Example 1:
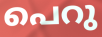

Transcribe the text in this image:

പെറു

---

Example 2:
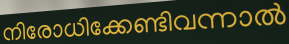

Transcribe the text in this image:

നിരോധിക്കേണ്ടിവന്നാൽ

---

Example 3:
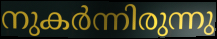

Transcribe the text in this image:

നുകർന്നിരുന്നു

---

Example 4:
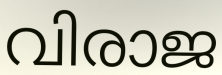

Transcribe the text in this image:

വിരാജ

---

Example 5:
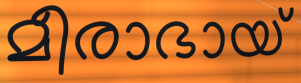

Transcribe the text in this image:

മീരാഭായ്